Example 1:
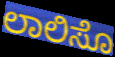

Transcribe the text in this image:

ಲಾಲಿಸೊ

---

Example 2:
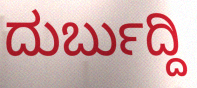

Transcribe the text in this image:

ದುರ್ಬುದ್ದಿ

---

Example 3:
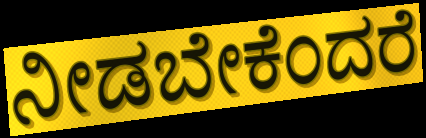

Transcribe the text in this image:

ನೀಡಬೇಕೆಂದರೆ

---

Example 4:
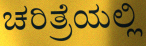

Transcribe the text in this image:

ಚರಿತ್ರೆಯಲ್ಲಿ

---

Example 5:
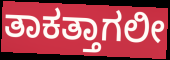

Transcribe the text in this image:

ತಾಕತ್ತಾಗಲೀ